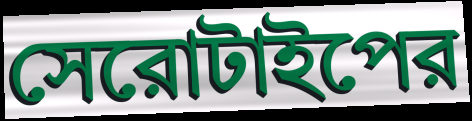
সেরোটাইপের